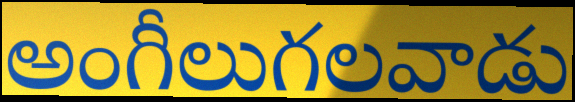
అంగీలుగలవాడు